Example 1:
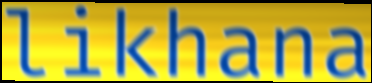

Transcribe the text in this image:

likhana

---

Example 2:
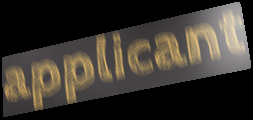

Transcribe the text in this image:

applicant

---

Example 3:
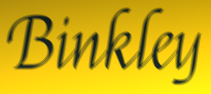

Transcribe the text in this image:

Binkley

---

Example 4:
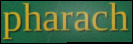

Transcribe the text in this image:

pharach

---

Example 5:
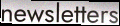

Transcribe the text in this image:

newsletters